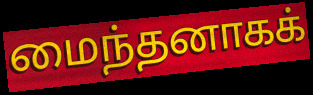
மைந்தனாகக்